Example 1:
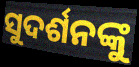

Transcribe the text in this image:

ସୁଦର୍ଶନଙ୍କୁ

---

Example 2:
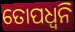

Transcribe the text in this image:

ତୋପଧ୍ୱନି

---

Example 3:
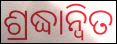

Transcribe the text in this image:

ଶ୍ରଦ୍ଧାନ୍ୱିତ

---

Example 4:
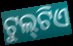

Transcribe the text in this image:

ଟୁଲ୍‍ଟିଏ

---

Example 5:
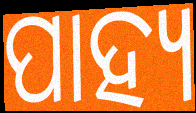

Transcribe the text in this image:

ପାହ୍ୟ